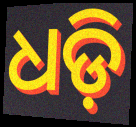
ଧଡ଼ି